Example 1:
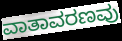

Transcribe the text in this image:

ವಾತಾವರಣವು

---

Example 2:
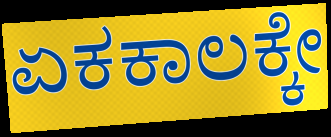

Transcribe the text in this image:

ಏಕಕಾಲಕ್ಕೇ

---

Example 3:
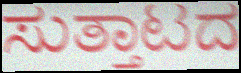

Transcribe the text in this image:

ಸುತ್ತಾಟದ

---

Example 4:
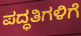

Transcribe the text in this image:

ಪದ್ಧತಿಗಳಿಗೆ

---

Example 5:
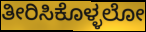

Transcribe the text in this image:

ತೀರಿಸಿಕೊಳ್ಳಲೋ